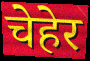
चेहेर